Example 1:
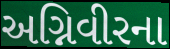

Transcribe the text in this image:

અગ્નિવીરના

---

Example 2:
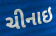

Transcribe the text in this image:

ચીનાઇ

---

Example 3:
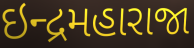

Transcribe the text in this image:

ઇન્દ્રમહારાજા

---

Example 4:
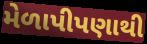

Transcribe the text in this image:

મેળાપીપણાથી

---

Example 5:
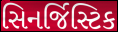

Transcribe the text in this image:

સિનર્જિસ્ટિક